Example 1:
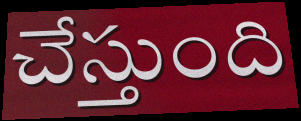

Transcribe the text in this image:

చేస్తుంది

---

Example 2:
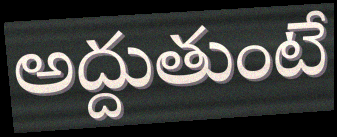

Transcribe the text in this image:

అద్దుతుంటే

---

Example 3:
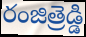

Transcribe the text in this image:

రంజిత్రెడ్డి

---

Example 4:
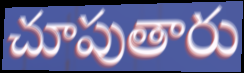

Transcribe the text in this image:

చూపుతారు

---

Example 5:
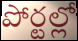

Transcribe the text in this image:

పోర్టల్లో